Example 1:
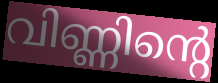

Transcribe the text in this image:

വിണ്ണിന്റെ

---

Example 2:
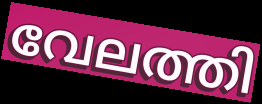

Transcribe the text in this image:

വേലത്തി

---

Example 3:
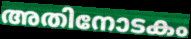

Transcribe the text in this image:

അതിനോടകം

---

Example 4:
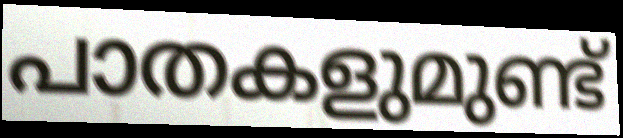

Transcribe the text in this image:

പാതകളുമുണ്ട്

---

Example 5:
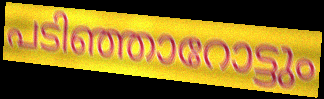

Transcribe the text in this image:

പടിഞ്ഞാറോട്ടും